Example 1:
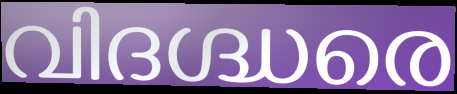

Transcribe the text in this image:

വിദഗ്ദ്ധരെ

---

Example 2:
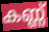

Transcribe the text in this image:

കണ്ണ്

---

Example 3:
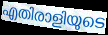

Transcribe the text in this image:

എതിരാളിയുടെ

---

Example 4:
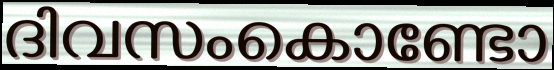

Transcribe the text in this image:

ദിവസംകൊണ്ടോ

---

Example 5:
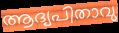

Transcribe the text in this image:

ആദ്യപിതാവു